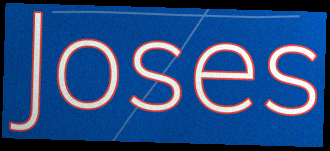
Joses